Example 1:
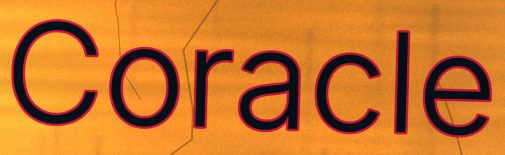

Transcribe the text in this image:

Coracle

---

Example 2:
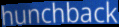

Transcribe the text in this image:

hunchback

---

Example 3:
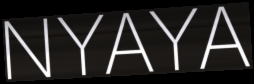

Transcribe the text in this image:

NYAYA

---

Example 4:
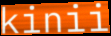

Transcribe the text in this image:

kinii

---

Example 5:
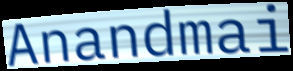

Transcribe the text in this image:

Anandmai